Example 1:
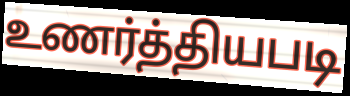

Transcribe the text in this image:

உணர்த்தியபடி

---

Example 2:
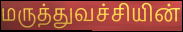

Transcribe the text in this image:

மருத்துவச்சியின்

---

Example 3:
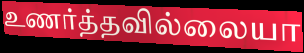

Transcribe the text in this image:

உணர்த்தவில்லையா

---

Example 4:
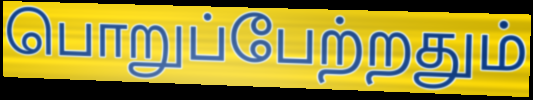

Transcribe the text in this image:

பொறுப்பேற்றதும்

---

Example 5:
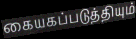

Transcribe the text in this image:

கையகப்படுத்தியும்